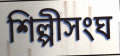
শিল্পীসংঘ